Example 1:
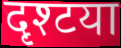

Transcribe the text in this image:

दृश्टया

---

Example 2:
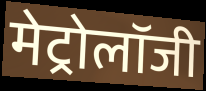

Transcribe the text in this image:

मेट्रोलॉजी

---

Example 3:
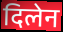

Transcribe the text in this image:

दिलेन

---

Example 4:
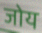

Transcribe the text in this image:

जोय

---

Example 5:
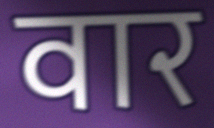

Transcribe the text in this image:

वार